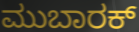
ಮುಬಾರಕ್